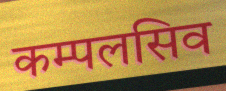
कम्पलसिव